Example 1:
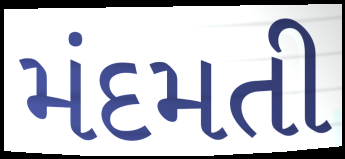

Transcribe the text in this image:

મંદમતી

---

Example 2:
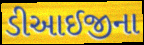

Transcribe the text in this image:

ડીઆઈજીના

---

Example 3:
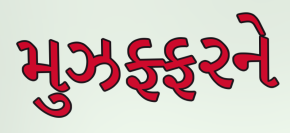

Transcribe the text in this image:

મુઝફ્ફરને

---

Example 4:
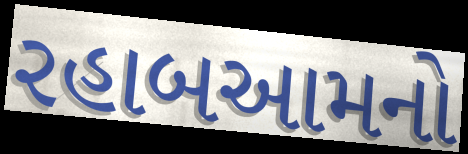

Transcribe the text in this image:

રહાબઆમનો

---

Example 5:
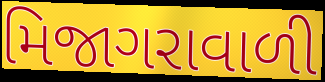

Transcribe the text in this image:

મિજાગરાવાળી